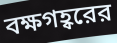
বক্ষগহ্বরের